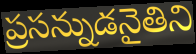
ప్రసన్నుడనైతిని